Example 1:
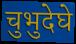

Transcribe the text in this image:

चुभुदेघे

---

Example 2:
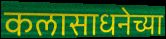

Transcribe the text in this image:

कलासाधनेच्या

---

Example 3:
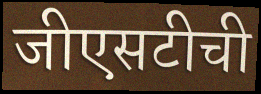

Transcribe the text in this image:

जीएसटीची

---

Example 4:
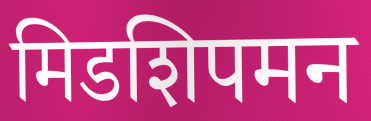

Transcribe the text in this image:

मिडशिपमन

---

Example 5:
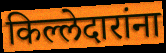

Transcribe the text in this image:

किल्लेदारांना